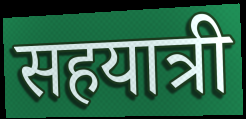
सहयात्री